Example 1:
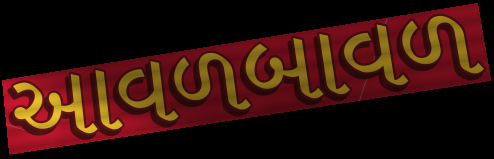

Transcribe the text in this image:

આવળબાવળ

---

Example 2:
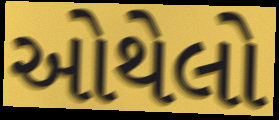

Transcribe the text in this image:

ઓથેલો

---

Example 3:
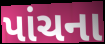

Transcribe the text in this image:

પાંચના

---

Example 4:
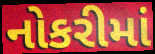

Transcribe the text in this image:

નોકરીમાં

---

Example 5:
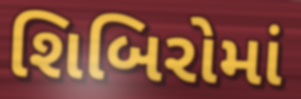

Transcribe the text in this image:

શિબિરોમાં